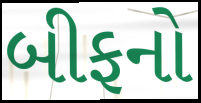
બીફનો